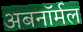
अबनॉर्मल